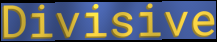
Divisive